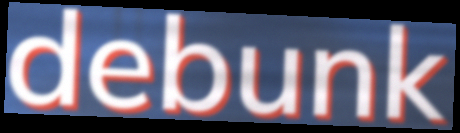
debunk